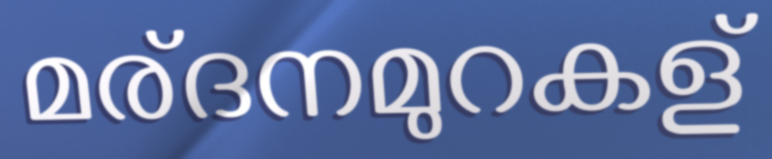
മര്ദനമുറകള്